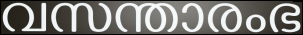
വസന്താരംഭ